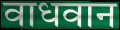
वाधवान